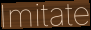
Imitate